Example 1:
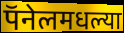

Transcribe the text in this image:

पॅनेलमधल्या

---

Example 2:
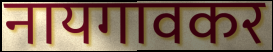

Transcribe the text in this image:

नायगावकर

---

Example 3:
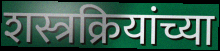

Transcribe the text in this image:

शस्त्रक्रियांच्या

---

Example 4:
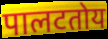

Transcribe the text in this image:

पालटतोय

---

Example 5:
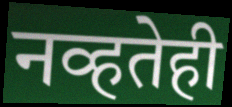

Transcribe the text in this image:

नव्हतेही